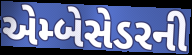
એમ્બેસેડરની